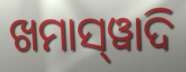
ଖମାସ୍‌ୱାଦି